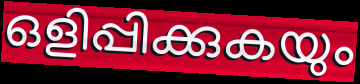
ഒളിപ്പിക്കുകയും